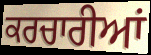
ਕਰਚਾਰੀਆਂ